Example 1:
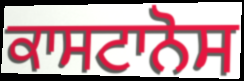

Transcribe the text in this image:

ਕਾਸਟਾਨੋਸ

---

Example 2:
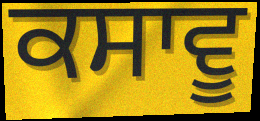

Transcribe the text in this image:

ਕਸਾਵੂ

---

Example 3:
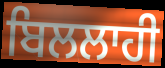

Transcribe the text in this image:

ਬਿਲਲਾਹੀ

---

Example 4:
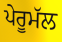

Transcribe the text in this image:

ਪੇਰੂਮੱਲ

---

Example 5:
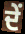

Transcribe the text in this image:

ਦੇਂ